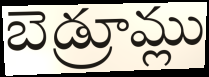
బెడ్రూమ్లు